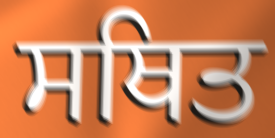
ਸਥਿਤ